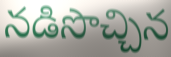
నడిసొచ్చిన